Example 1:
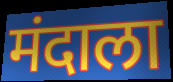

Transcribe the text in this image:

मंदाला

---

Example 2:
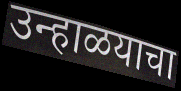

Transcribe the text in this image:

उन्हाळयाचा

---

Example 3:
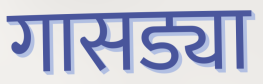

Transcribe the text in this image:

गासड्या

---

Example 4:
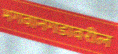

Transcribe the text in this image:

भगवानगडावरील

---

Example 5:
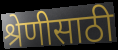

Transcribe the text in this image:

श्रेणीसाठी